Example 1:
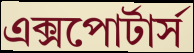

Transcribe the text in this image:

এক্সপোর্টার্স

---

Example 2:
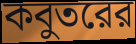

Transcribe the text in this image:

কবুতরের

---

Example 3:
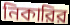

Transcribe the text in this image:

নিকারির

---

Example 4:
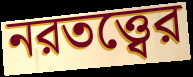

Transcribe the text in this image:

নরতত্ত্বের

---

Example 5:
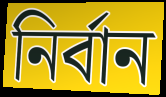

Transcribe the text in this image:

নির্বান